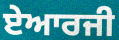
ਏਆਰਜੀ